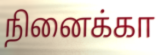
நினைக்கா